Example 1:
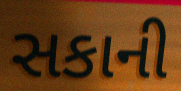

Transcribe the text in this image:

સકાની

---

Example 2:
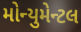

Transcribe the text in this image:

મોન્યુમેન્ટલ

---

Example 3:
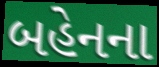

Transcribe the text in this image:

બહેનના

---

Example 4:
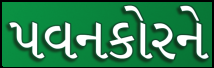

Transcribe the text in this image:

પવનકોરને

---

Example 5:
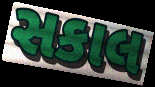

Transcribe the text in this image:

સકાલ